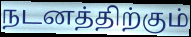
நடனத்திற்கும்